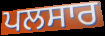
ਪਲਸਾਰ